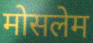
मोसलेम